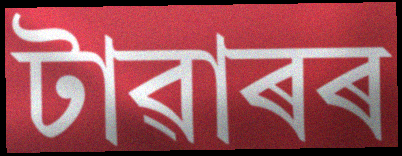
টাৱাৰৰ